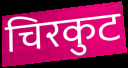
चिरकुट